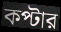
কপ্টার